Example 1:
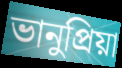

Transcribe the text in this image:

ভানুপ্রিয়া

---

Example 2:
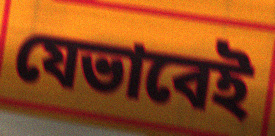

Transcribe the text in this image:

যেভাবেই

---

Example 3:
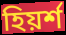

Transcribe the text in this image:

হিয়র্শ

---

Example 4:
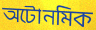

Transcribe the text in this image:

অটোনমিক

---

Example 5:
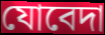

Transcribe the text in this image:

যোবেদা